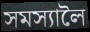
সমস্যালৈ